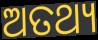
ଅତଥ୍ୟ